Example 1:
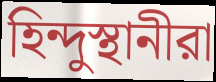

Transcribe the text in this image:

হিন্দুস্থানীরা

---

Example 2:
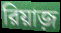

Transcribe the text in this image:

রিয়াজ়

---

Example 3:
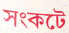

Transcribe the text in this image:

সংকটে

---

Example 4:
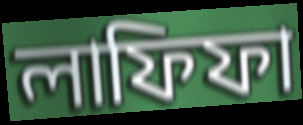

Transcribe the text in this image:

লাফিফা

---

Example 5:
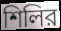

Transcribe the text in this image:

শিলির